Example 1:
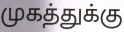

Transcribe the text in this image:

முகத்துக்கு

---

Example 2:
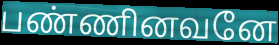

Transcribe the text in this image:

பண்ணினவனே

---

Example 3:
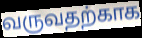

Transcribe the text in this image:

வருவதற்காக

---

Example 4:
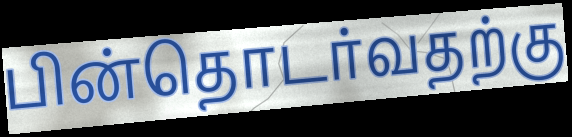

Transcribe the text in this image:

பின்தொடர்வதற்கு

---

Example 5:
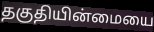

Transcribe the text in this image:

தகுதியின்மையை